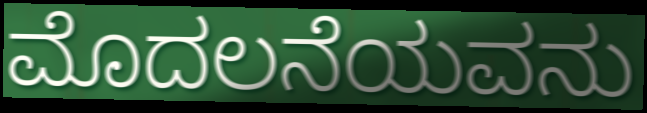
ಮೊದಲನೆಯವನು